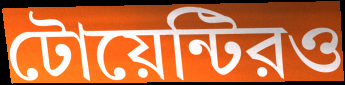
টোয়েন্টিরও